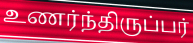
உணர்ந்திருப்பர்